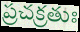
ప్రచక్రతుః